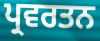
ਪ੍ਰਵਰਤਨ